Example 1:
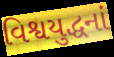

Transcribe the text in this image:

વિશ્વયુદ્ધનાં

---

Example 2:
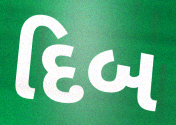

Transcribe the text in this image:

દિબ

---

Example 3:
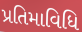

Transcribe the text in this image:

પ્રતિમાવિધિ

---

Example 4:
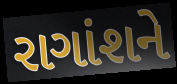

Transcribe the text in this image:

રાગાંશને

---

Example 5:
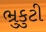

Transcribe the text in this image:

ભ્રુકુટી